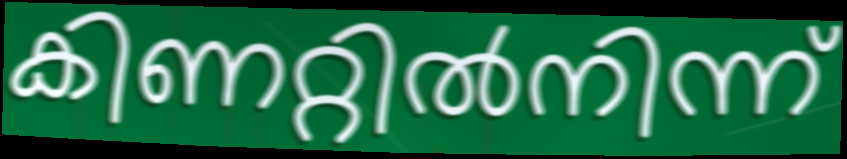
കിണറ്റിൽനിന്ന്